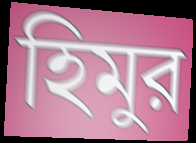
হিমুর